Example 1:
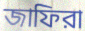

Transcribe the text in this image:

জাফিরা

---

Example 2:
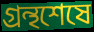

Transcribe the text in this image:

গ্রন্থশেষে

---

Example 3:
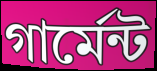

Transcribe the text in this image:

গার্মেন্ট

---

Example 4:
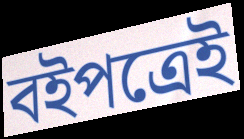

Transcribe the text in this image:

বইপত্রেই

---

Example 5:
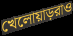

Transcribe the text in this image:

খেলোয়াড়রাও